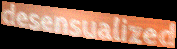
desensualized